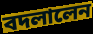
বদলালেন